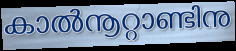
കാൽനൂറ്റാണ്ടിനു